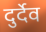
दुर्देव